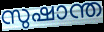
സുഷാന്ത